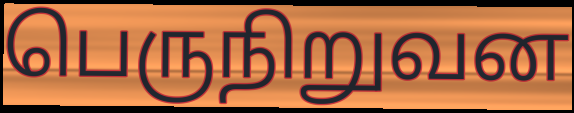
பெருநிறுவன